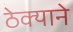
ठेक्याने